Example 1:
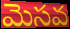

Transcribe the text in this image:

మెసవ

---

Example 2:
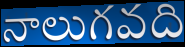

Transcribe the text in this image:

నాలుగవది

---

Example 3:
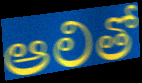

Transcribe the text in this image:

ఆలితో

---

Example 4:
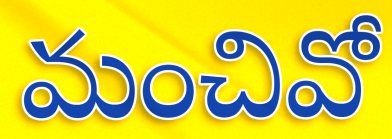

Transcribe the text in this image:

మంచివో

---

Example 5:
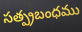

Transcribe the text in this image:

సత్ప్రబంధము